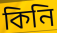
কিনি